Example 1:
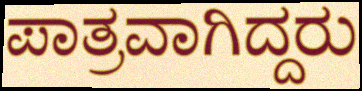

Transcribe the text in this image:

ಪಾತ್ರವಾಗಿದ್ದರು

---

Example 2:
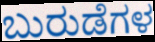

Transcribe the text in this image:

ಬುರುಡೆಗಳ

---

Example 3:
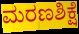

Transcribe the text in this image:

ಮರಣಶಿಕ್ಷೆ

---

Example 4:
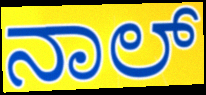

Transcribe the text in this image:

ನಾಲ್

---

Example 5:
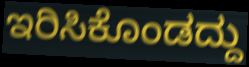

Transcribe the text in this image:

ಇರಿಸಿಕೊಂಡದ್ದು